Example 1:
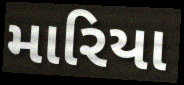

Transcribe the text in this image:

મારિયા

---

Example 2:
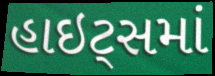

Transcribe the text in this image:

હાઇટ્સમાં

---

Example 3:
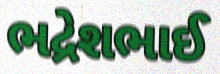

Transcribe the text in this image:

ભદ્રેશભાઈ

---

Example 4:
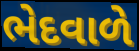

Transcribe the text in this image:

ભેદવાળે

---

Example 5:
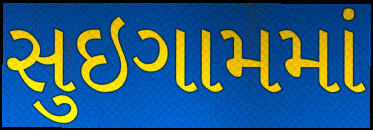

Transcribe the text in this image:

સુઇગામમાં